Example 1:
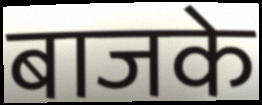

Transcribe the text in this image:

बाजके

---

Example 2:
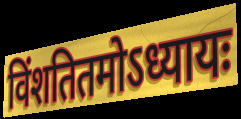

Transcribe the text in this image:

विंशतितमोऽध्यायः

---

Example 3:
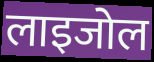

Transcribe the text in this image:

लाइजोल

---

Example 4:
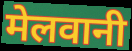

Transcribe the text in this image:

मेलवानी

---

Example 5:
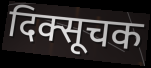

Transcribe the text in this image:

दिक्सूचक